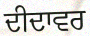
ਦੀਦਾਵਰ